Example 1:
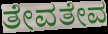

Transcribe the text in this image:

ತೇವತೇವ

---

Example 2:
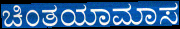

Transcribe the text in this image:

ಚಿಂತಯಾಮಾಸ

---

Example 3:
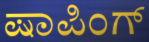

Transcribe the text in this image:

ಷಾಪಿಂಗ್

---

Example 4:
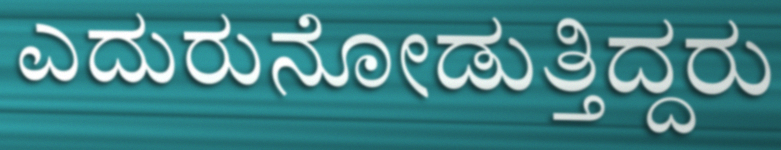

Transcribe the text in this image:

ಎದುರುನೋಡುತ್ತಿದ್ದರು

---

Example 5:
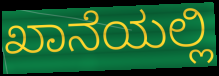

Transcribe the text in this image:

ಖಾನೆಯಲ್ಲಿ